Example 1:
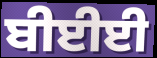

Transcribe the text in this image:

ਬੀਈਈ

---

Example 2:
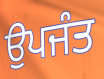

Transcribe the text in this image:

ਉਪਜੰਤ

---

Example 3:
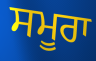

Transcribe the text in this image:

ਸਮੂਰਾ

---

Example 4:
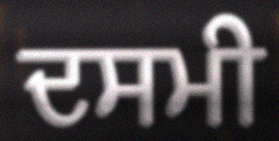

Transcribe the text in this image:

ਦਸਮੀ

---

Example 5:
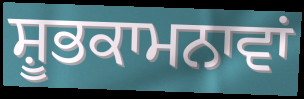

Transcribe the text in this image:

ਸ਼ੂਭਕਾਮਨਾਵਾਂ